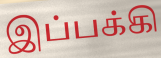
இப்பக்கி